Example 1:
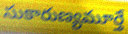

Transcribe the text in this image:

సుకారుణ్యమూర్తే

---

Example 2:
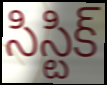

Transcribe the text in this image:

సిస్టిక్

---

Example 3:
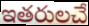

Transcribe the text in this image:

ఇతరులచే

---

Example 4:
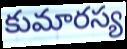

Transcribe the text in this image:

కుమారస్య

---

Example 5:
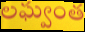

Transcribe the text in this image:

లఘ్వంత